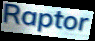
Raptor